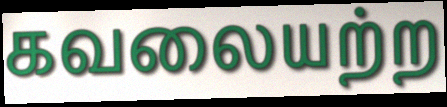
கவலையற்ற